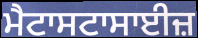
ਮੈਟਾਸਟਾਸਾਈਜ਼